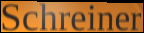
Schreiner